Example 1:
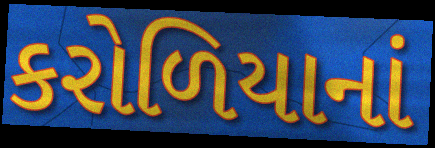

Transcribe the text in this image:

કરોળિયાનાં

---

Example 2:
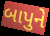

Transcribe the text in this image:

બાપુને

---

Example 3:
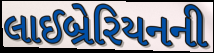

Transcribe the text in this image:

લાઈબ્રેરિયનની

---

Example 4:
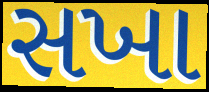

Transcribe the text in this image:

સખા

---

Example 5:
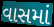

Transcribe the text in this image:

વાસમાં